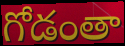
గోడంతా